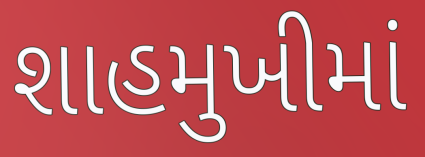
શાહમુખીમાં